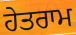
ਹੇਤਰਾਮ